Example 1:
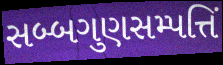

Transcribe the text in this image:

સબ્બગુણસમ્પત્તિં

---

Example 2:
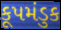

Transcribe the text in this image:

કૂપમંડુક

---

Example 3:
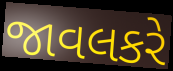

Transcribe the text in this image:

જાવલકરે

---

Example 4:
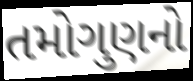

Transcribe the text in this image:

તમોગુણનો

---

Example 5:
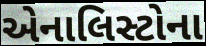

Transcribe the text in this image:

એનાલિસ્ટોના